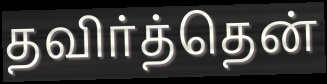
தவிர்த்தென்